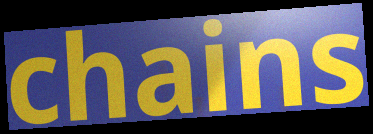
chains